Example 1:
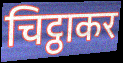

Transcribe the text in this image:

चिट्ठाकर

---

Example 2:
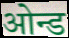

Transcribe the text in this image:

ओन्ड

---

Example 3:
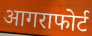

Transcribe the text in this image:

आगराफोर्ट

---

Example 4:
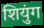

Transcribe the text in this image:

शियुंग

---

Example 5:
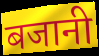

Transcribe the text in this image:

बजानी